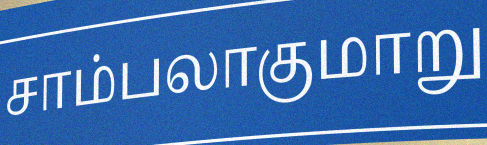
சாம்பலாகுமாறு